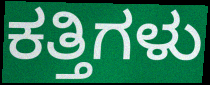
ಕತ್ತಿಗಳು